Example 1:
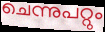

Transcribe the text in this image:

ചെന്നുപറ്റും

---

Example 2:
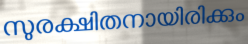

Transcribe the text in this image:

സുരക്ഷിതനായിരിക്കും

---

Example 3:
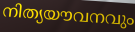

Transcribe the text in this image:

നിത്യയൗവനവും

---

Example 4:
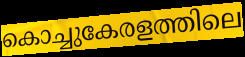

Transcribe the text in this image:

കൊച്ചുകേരളത്തിലെ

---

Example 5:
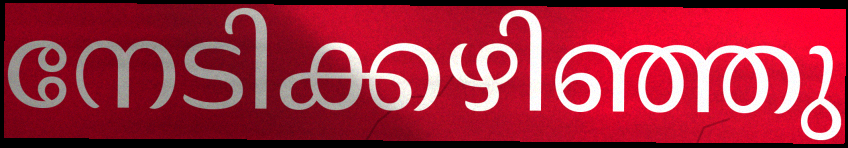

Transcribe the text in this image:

നേടിക്കഴിഞ്ഞു